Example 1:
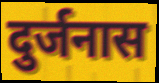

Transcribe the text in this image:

दुर्जनास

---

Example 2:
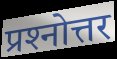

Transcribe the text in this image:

प्रश्‍नोत्तर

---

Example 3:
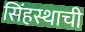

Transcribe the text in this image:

सिंहस्थाची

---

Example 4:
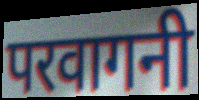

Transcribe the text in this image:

परवागनी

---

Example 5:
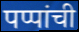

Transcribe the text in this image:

पप्पांची